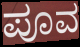
ಪೂವ